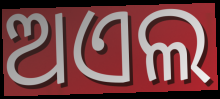
ଅଏଲ